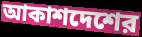
আকাশদেশের